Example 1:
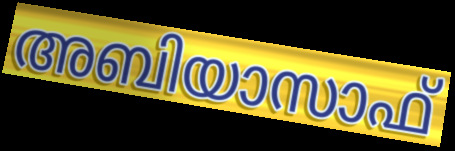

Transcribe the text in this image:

അബിയാസാഫ്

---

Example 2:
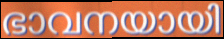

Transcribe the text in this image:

ഭാവനയായി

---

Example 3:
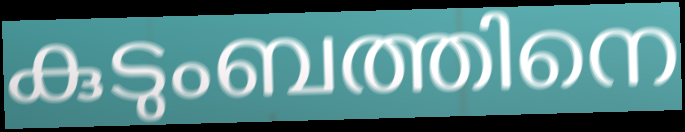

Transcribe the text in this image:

കുടുംബത്തിനെ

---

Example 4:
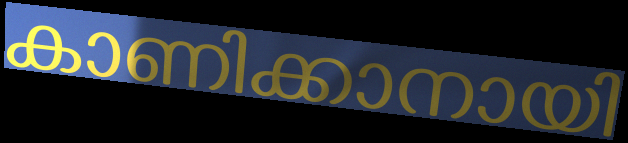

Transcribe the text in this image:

കാണിക്കാനായി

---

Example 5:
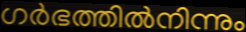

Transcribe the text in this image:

ഗർഭത്തിൽനിന്നും